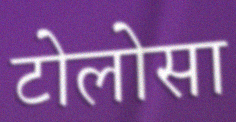
टोलोसा